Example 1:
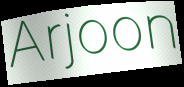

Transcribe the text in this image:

Arjoon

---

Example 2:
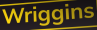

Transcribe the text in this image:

Wriggins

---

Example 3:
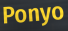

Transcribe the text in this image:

Ponyo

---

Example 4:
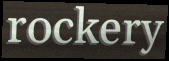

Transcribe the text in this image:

rockery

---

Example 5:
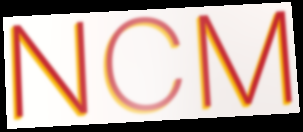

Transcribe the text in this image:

NCM